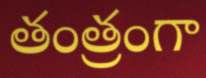
తంత్రంగా